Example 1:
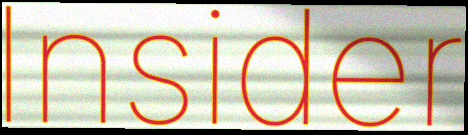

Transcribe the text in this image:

Insider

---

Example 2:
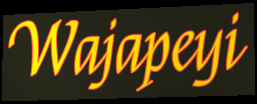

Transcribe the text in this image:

Wajapeyi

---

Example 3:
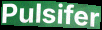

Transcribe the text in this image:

Pulsifer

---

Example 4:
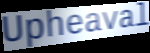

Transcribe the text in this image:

Upheaval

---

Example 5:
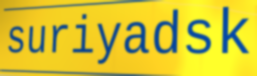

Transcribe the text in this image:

suriyadsk